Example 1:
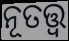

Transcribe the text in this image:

ନୂତତ୍ତ୍ବ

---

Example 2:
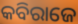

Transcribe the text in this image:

କବିରାଜେ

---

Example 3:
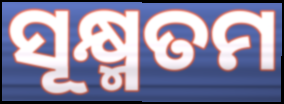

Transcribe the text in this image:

ସୂକ୍ଷ୍ମତମ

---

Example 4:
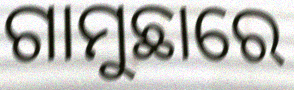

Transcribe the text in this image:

ଗାମୁଛାରେ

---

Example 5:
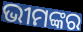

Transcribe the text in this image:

ଭୀମଙ୍କର